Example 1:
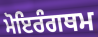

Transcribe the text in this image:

ਮੋਇਰੰਗਥਮ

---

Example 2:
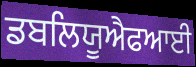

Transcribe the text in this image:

ਡਬਲਿਯੂਐਫਆਈ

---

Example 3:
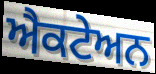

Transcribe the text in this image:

ਐਕਟੇਅਨ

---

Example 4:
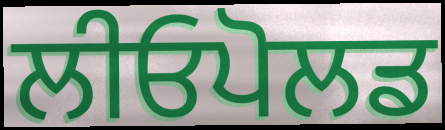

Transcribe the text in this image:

ਲੀਓਪੋਲਡ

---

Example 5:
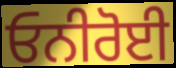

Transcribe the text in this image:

ਓਨੀਰੋਈ